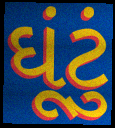
ઘૂંટું